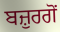
ਬਜ਼ੁਰਗੋਂ